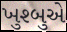
ખુશ્બુએ